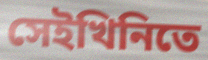
সেইখিনিতে